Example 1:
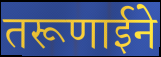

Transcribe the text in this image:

तरूणाईने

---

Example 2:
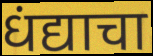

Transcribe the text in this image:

धंद्याचा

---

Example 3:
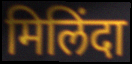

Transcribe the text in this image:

मिलिंदा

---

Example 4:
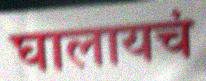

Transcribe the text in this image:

घालायचं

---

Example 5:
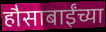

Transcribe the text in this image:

हौसाबाईंच्या